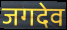
जगदेव